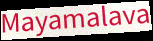
Mayamalava